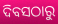
ଦିବସଠାରୁ